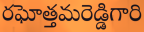
రఘోత్తమరెడ్డిగారి